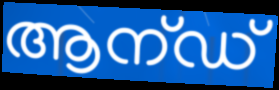
ആന്ഡ്